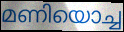
മണിയൊച്ച